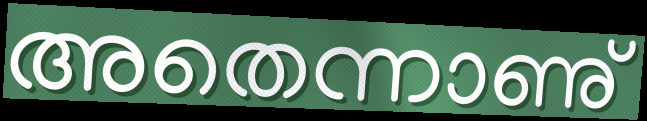
അതെന്നാണു്